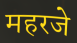
महरजे